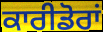
ਕਾਰੀਡੋਰਾਂ